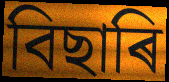
বিছাৰি